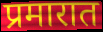
प्रमारात